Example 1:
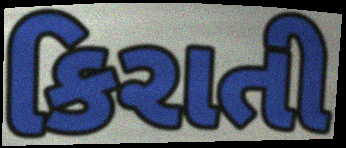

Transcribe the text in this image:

કિરાતી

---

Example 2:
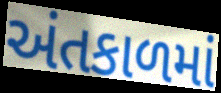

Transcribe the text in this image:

અંતકાળમાં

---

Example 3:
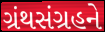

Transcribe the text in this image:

ગ્રંથસંગ્રહને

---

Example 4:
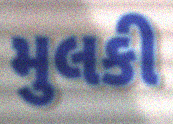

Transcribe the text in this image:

મુલકી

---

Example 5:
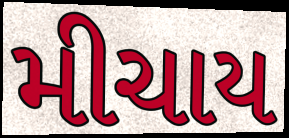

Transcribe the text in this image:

મીચાય